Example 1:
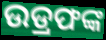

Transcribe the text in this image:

ଉଡ୍ରଫଙ୍କ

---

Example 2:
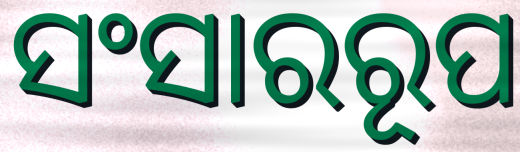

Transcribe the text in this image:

ସଂସାରରୂପ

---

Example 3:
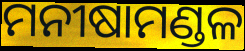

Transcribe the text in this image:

ମନୀଷାମଣ୍ଡଳ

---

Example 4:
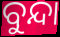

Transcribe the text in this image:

ବୁନ୍ଦା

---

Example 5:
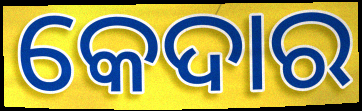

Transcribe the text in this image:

କେଦାର